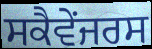
ਸਕੈਵੇਂਜਰਸ